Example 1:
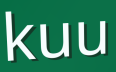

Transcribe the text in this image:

kuu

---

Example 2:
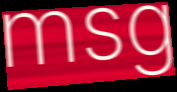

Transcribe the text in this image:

msg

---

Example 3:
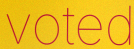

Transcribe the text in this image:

voted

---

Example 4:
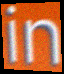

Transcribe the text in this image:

in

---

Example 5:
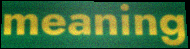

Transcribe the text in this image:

meaning